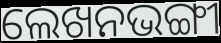
ଲେଖନଭଙ୍ଗୀ